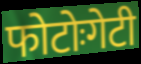
फोटोःगेटी